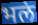
भलं